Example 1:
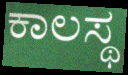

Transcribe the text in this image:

ಕಾಲಸ್ಥ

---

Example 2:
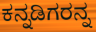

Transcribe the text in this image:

ಕನ್ನಡಿಗರನ್ನ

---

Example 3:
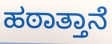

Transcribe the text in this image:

ಹಠಾತ್ತಾನೆ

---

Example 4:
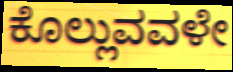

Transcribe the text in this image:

ಕೊಲ್ಲುವವಳೇ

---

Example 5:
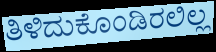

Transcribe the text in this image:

ತಿಳಿದುಕೊಂಡಿರಲಿಲ್ಲ